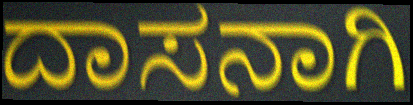
ದಾಸನಾಗಿ